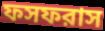
ফসফরাস